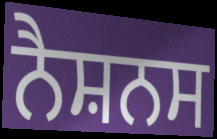
ਨੈਸ਼ਨਸ